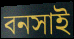
বনসাই